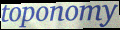
toponomy